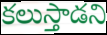
కలుస్తాడని